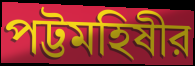
পট্টমহিষীর